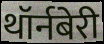
थॉर्नबेरी